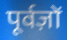
पूर्वज़ों